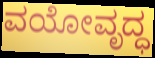
ವಯೋವೃದ್ಧ